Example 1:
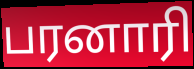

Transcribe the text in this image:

பரனாரி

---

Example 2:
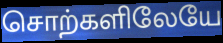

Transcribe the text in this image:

சொற்களிலேயே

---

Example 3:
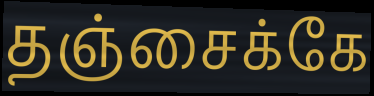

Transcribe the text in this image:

தஞ்சைக்கே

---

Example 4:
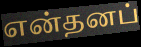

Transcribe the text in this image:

என்தனப்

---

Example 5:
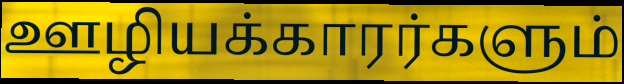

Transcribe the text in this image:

ஊழியக்காரர்களும்